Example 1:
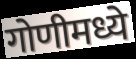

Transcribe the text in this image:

गोणीमध्ये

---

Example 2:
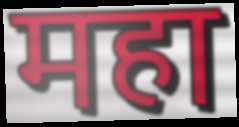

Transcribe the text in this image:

महा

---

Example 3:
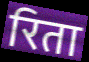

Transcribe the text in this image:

रिता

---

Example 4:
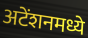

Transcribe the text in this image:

अटेंशनमध्ये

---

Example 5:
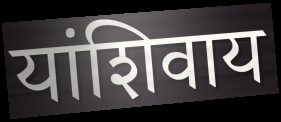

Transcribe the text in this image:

यांशिवाय